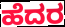
ಹೆದರ